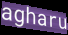
agharu